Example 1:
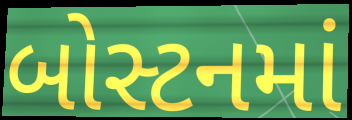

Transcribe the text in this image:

બોસ્ટનમાં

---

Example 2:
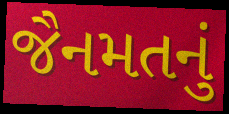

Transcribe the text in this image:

જૈનમતનું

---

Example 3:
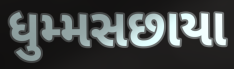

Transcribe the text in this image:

ધુમ્મસછાયા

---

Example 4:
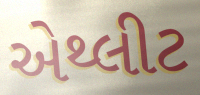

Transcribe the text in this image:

એથ્લીટ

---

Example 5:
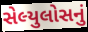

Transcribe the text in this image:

સેલ્યુલોસનું